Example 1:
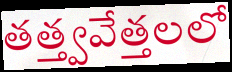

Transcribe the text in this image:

తత్త్వవేత్తలలో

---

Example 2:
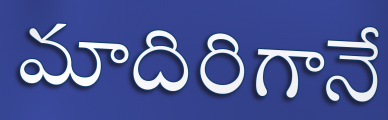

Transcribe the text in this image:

మాదిరిగానే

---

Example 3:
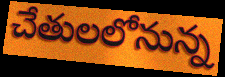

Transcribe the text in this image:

చేతులలోనున్న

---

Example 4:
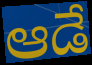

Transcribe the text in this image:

ఆడే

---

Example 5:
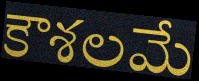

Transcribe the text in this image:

కౌశలమే